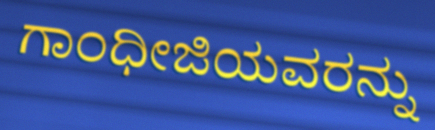
ಗಾಂಧೀಜಿಯವರನ್ನು